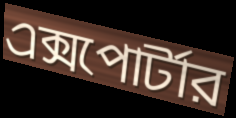
এক্সপোর্টার